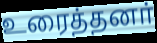
உரைத்தனர்